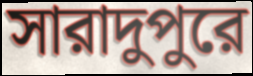
সারাদুপুরে